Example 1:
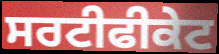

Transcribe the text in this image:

ਸਰਟੀਫੀਕੇਟ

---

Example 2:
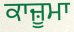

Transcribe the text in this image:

ਕਾਜ਼ੂਮਾ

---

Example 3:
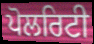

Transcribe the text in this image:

ਪੋਲਰਿਟੀ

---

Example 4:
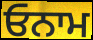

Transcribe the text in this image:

ਓਨਾਮ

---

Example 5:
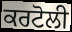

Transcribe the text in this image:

ਕਰਟੋਲੀ